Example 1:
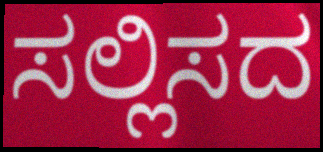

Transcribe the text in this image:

ಸಲ್ಲಿಸದ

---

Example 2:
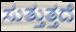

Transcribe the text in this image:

ಸುತ್ತುತ್ತದೆ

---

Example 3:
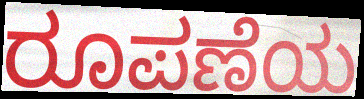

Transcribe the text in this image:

ರೂಪಣೆಯ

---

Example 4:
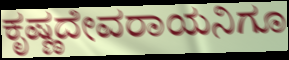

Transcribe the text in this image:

ಕೃಷ್ಣದೇವರಾಯನಿಗೂ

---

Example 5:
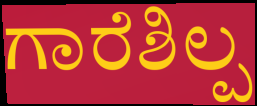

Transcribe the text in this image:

ಗಾರೆಶಿಲ್ಪ